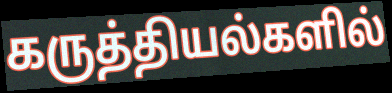
கருத்தியல்களில்